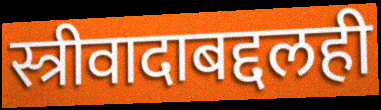
स्त्रीवादाबद्दलही